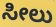
ಸೀಲು